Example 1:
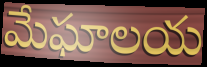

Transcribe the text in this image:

మేఘాలయ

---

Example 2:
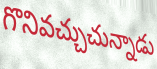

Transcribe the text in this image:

గొనివచ్చుచున్నాడు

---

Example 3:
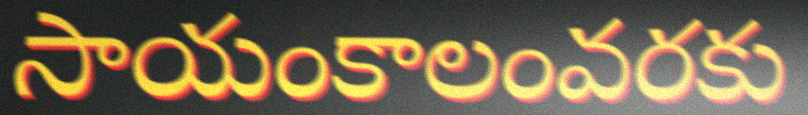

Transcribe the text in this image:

సాయంకాలంవరకు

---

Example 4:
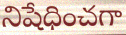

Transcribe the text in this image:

నిషేధించగా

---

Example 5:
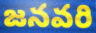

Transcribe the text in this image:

జనవరి